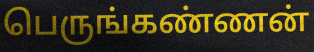
பெருங்கண்ணன்